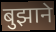
बुझाने